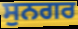
ਸੁਨਗਰ